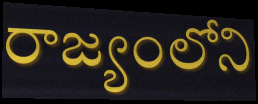
రాజ్యంలోని